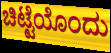
ಚಿಟ್ಟೆಯೊಂದು